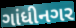
ગાંધીનગર